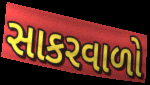
સાકરવાળો